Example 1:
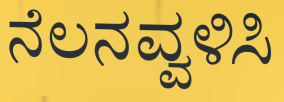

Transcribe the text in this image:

ನೆಲನವ್ವಳಿಸಿ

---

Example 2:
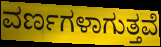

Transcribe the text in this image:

ವರ್ಣಗಳಾಗುತ್ತವೆ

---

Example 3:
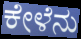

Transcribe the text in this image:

ಕೇಳೆನು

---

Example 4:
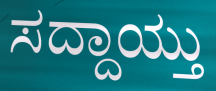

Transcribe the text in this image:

ಸದ್ದಾಯ್ತು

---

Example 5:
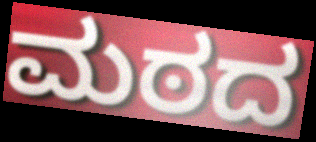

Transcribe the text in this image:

ಮಠದ